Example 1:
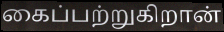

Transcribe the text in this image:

கைப்பற்றுகிறான்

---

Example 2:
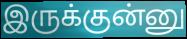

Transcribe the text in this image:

இருக்குன்னு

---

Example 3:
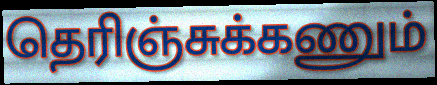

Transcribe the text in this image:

தெரிஞ்சுக்கணும்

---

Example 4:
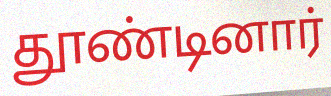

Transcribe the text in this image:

தூண்டினார்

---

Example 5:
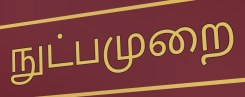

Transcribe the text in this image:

நுட்பமுறை